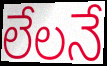
లేలనే